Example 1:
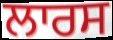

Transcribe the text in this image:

ਲਾਰਸ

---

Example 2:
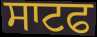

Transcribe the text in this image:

ਸਾਟਫ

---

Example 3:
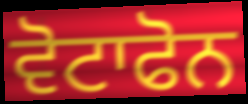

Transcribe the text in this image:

ਵੋਟਾਫੋਨ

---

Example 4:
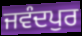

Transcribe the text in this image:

ਜਵੰਦਪੁਰ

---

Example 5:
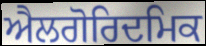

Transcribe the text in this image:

ਐਲਗੋਰਿਦਮਿਕ